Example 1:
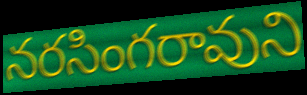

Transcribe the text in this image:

నరసింగరావుని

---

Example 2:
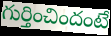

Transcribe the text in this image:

గుర్తించిందంటే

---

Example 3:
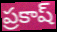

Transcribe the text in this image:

ప్రకాష్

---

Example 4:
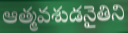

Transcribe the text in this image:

ఆత్మవశుడనైతిని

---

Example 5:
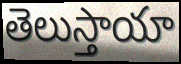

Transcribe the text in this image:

తెలుస్తాయా